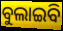
ବୁଲାଇବି